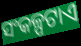
ସଂକଳ୍ପଟାଏ